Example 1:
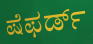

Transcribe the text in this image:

ಷೆಫರ್ಡ್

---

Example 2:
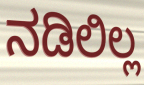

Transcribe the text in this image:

ನಡಿಲಿಲ್ಲ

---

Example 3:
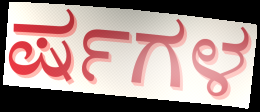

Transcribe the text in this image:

ರ್ಷಗಳ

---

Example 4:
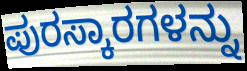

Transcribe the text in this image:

ಪುರಸ್ಕಾರಗಳನ್ನು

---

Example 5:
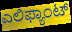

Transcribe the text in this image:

ಎಲಿಫ್ಯಾಂಟ್